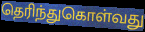
தெரிந்துகொள்வது